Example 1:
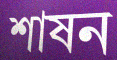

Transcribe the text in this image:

শাষন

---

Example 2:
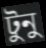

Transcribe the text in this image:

টুনু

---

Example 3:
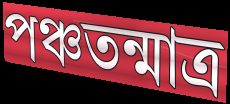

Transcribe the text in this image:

পঞ্চতন্মাত্র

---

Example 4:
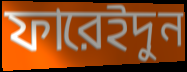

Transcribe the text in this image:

ফারেইদুন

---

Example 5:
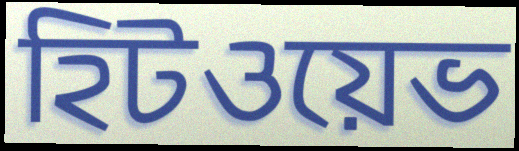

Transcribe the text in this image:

হিটওয়েভ